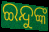
ଇନ୍ଦୁଙ୍କ